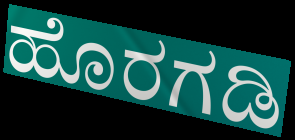
ಹೊರಗಡಿ